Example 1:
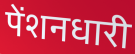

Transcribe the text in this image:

पेंशनधारी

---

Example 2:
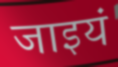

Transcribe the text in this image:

जाइयं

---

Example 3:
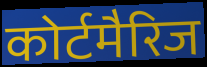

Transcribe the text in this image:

कोर्टमैरिज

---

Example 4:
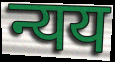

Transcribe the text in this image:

न्यय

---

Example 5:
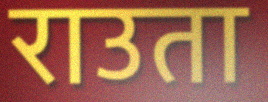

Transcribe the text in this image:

राउता